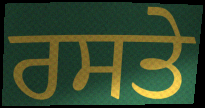
ਰਸਤੇ